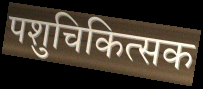
पशुचिकित्सक